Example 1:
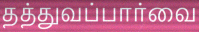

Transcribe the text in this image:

தத்துவப்பார்வை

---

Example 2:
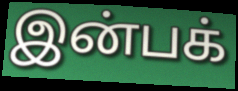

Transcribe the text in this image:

இன்பக்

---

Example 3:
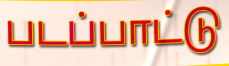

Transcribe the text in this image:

படப்பாட்டு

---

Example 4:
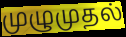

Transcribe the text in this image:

முழுமுதல்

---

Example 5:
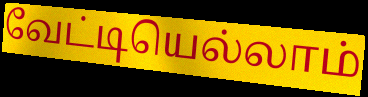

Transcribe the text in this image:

வேட்டியெல்லாம்